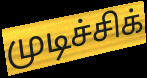
முடிச்சிக்